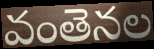
వంతెనల